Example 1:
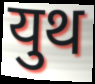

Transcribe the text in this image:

युथ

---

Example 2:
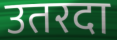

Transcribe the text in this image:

उतरदा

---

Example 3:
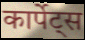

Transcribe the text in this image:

कार्पेट्स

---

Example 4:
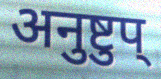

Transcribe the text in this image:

अनुष्टुप्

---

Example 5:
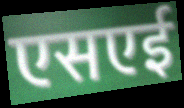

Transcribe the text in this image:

एसएई